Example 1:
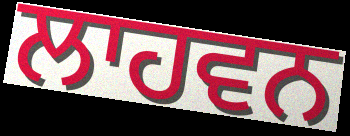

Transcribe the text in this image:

ਲਾਹਵਨ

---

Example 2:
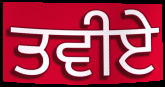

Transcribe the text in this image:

ਤਵੀਏ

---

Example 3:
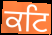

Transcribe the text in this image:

ਕਟਿ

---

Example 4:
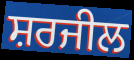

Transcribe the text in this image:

ਸ਼ਰਜੀਲ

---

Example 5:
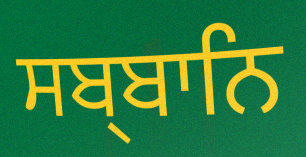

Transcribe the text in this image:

ਸਬ੍ਬਾਨਿ